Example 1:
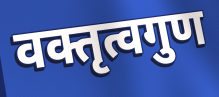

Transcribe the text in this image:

वक्तृत्वगुण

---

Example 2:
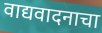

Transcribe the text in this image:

वाद्यवादनाचा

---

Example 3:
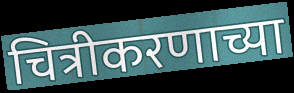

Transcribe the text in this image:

चित्रीकरणाच्या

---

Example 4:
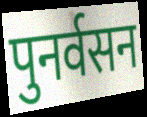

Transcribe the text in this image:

पुनर्वसन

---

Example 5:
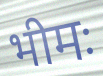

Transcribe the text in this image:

भीमः